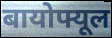
बायोफ्यूल